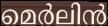
മെർലിൻ